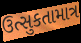
ઉત્સુકતામાત્ર